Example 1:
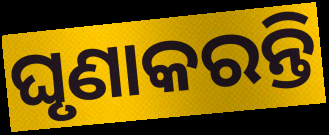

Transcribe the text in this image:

ଘୃଣାକରନ୍ତି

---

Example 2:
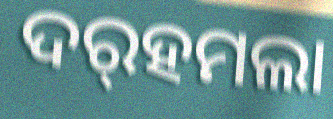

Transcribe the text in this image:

ଦର୍‌ହମଲା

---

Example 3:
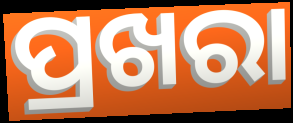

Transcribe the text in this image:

ପ୍ରଖରା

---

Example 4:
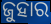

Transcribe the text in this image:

ଜୁହାର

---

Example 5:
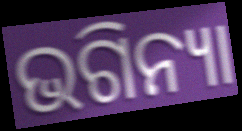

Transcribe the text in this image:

ଭଗିନ୍ୟା